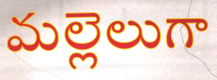
మల్లెలుగా